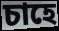
চাহে